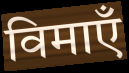
विमाएँ